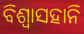
ବିଶ୍ବାସହାନି